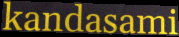
kandasami